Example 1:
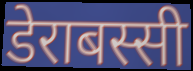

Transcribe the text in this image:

डेराबस्सी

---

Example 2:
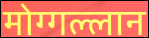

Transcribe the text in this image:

मोग्गल्लान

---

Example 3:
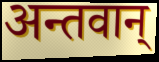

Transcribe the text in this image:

अन्तवान्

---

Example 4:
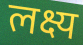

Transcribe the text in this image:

लक्ष्‍य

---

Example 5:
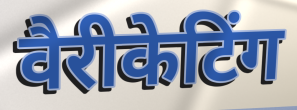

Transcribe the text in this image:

वैरीकेटिंग